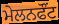
ਮੇਲਨਫੌਂਟ